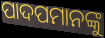
ପାଦପମାନଙ୍କୁ